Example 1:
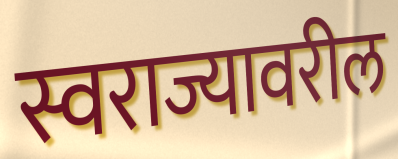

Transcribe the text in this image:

स्वराज्यावरील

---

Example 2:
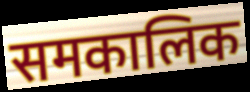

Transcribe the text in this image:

समकालिक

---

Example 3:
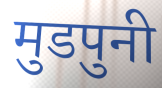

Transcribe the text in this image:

मुडपुनी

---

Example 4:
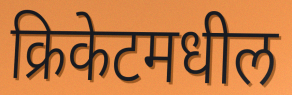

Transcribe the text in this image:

क्रिकेटमधील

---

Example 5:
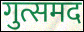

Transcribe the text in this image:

गुत्समद